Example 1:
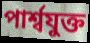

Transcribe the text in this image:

পার্শ্বযুক্ত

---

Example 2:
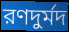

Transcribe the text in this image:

রণদুর্মদ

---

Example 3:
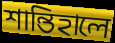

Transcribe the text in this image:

শান্তিহালে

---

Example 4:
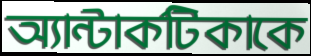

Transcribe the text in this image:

অ্যান্টার্কটিকাকে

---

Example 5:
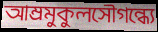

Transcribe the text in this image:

আম্রমুকুলসৌগন্ধ্যে